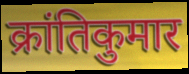
क्रांतिकुमार